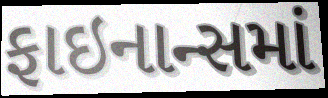
ફાઇનાન્સમાં